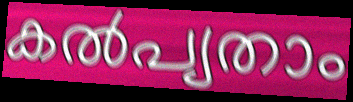
കൽപ്യതാം